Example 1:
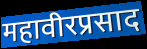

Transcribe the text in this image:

महावीरप्रसाद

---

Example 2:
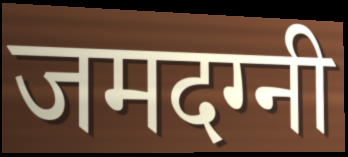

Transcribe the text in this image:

जमदग्नी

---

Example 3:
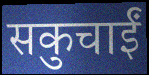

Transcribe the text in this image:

सकुचाईं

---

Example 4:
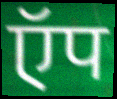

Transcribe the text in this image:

ऍप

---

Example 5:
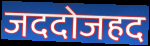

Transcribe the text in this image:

जददोजहद